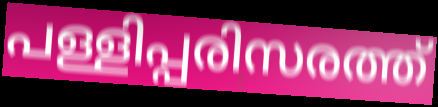
പള്ളിപ്പരിസരത്ത്